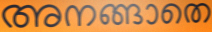
അനങ്ങാതെ